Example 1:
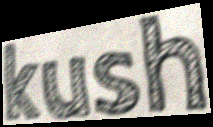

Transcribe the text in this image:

kush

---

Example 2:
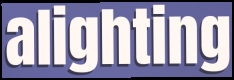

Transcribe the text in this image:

alighting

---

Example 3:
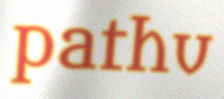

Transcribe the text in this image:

pathu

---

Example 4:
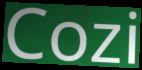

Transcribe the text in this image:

Cozi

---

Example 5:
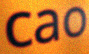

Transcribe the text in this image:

cao